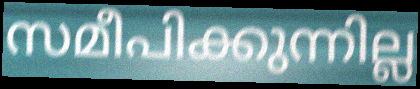
സമീപിക്കുന്നില്ല